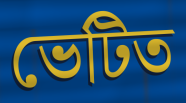
ভেটিত